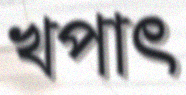
খপাৎ